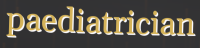
paediatrician